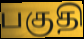
பகுதி